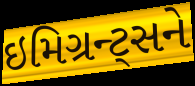
ઇમિગ્રન્ટ્સને